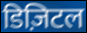
डिज़िटल